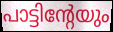
പാട്ടിന്റേയും